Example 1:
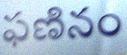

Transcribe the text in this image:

ఫణినం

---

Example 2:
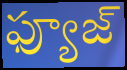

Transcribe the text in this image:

ఫ్యూజ్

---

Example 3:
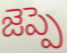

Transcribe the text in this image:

జెప్పె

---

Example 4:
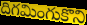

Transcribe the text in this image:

దిగమింగుకొని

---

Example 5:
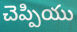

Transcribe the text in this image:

చెప్పియు